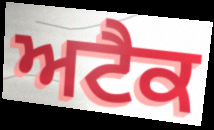
ਅਟੈਕ